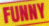
FUNNY